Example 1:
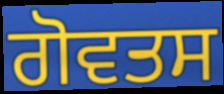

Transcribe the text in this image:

ਗੋਵਤਸ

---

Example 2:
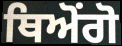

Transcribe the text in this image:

ਥਿਅੋਂਗੋ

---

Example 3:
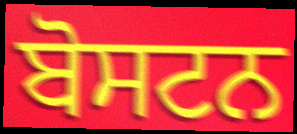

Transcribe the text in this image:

ਬੋਸਟਨ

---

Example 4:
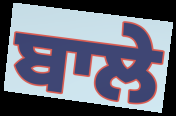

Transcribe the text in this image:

ਬਾਲੇ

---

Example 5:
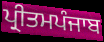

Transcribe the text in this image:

ਪ੍ਰੀਤਮਪੰਜਾਬ